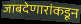
जाबदेणारांकडून